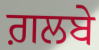
ਗ਼ਲਬੇ